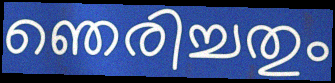
ഞെരിച്ചതും